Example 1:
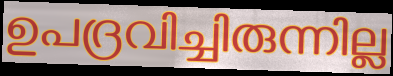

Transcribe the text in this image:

ഉപദ്രവിച്ചിരുന്നില്ല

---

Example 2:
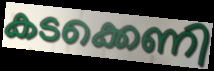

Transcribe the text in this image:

കടക്കെണി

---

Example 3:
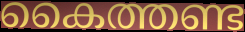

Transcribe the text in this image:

കൈത്തണ്ട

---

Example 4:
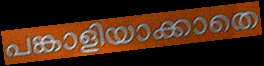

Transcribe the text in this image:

പങ്കാളിയാക്കാതെ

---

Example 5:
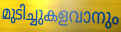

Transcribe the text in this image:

മുടിച്ചുകളവാനും